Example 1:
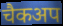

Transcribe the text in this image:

चैकअप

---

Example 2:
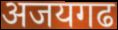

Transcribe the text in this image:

अजयगढ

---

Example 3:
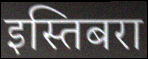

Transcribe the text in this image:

इस्तिबरा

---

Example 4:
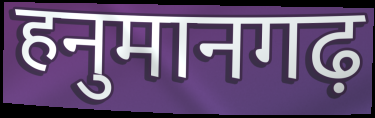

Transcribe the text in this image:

हनुमानगढ़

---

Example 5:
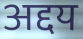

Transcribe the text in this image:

अद्दय